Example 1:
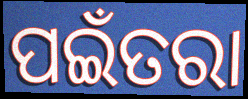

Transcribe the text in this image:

ପଇଁତରା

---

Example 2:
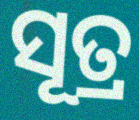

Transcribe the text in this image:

ସୂତ୍ର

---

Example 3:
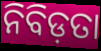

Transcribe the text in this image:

ନିବିଡ଼ତା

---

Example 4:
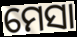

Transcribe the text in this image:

ମେସା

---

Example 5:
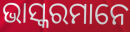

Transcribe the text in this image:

ଭାସ୍କରମାନେ